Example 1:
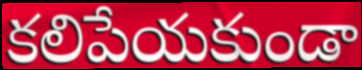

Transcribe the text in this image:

కలిపేయకుండా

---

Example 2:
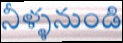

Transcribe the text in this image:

నీళ్ళనుండి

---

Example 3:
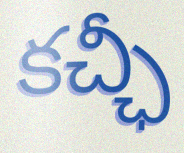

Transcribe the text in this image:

కచ్ఛీ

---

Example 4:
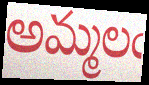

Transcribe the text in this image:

అమ్మలఁ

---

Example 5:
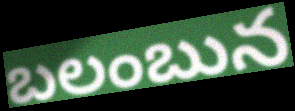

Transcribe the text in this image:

బలంబున